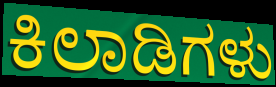
ಕಿಲಾಡಿಗಳು